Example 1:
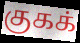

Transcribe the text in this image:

குகக்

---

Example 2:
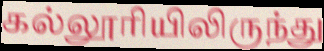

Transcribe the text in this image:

கல்லூரியிலிருந்து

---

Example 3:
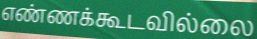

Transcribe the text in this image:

எண்ணக்கூடவில்லை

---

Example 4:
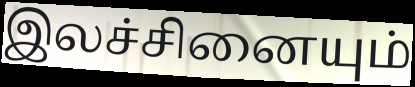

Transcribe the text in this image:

இலச்சினையும்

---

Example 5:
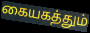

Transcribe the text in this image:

கையகத்தும்